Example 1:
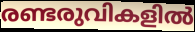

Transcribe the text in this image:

രണ്ടരുവികളിൽ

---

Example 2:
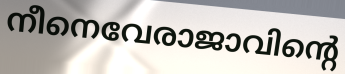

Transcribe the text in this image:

നീനെവേരാജാവിന്റെ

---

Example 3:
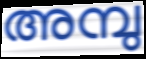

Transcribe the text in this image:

അമ്പു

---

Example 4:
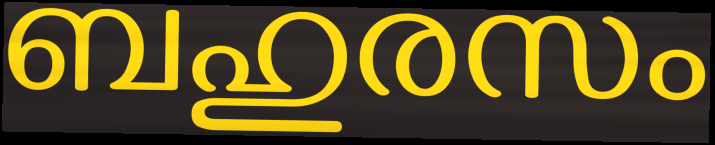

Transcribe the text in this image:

ബഹുരസം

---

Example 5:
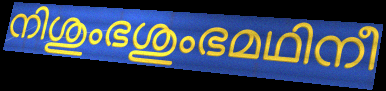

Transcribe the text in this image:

നിശുംഭശുംഭമഥിനീ